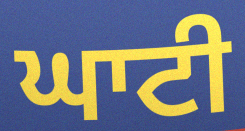
ਘਾਟੀ